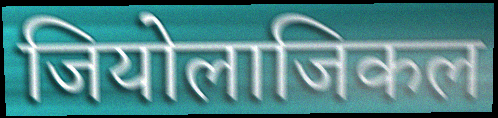
जियोलाजिकल